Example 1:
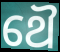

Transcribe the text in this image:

ଥୈ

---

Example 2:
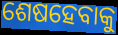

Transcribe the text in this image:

ଶେଷହେବାକୁ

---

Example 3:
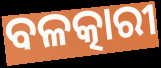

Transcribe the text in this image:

ବଳତ୍କାରୀ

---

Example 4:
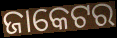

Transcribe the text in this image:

ଜାକେଟର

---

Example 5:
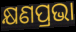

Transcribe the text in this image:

କ୍ଷଣପ୍ରଭା